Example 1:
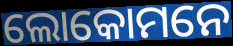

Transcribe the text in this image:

ଲୋକୋମନେ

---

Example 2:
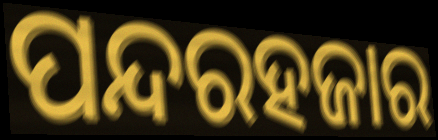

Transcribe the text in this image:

ପନ୍ଦରହଜାର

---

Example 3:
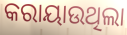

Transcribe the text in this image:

କରାୟାଉଥିଲା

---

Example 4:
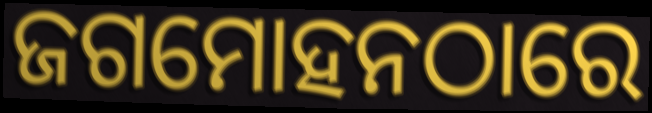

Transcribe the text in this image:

ଜଗମୋହନଠାରେ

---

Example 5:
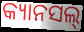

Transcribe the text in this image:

କ୍ୟାନସଲ୍